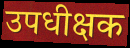
उपधीक्षक